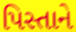
પિસ્તાને